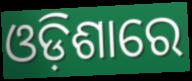
ଓଡ଼ିଶାରେ